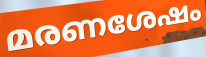
മരണശേഷം